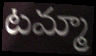
టమ్మా